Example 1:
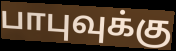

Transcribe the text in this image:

பாபுவுக்கு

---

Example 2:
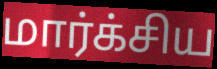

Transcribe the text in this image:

மார்க்சிய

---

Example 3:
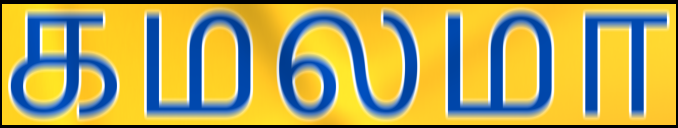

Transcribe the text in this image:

கமலமா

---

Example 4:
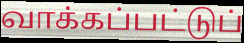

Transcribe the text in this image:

வாக்கப்பட்டுப்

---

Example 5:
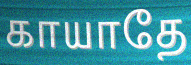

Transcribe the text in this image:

காயாதே